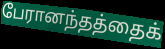
பேரானந்தத்தைக்